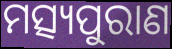
ମତ୍ସ୍ୟପୁରାଣ